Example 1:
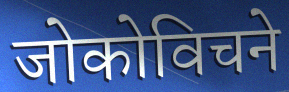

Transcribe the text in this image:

जोकोविचने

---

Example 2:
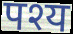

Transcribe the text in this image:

पश्य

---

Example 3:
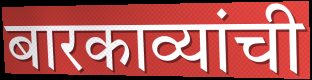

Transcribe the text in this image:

बारकाव्यांची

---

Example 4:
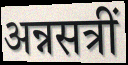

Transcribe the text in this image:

अन्नसत्रीं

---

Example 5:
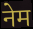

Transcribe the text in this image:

नेम